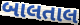
બાલતાલ